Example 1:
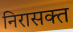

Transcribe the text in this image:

निरासक्त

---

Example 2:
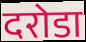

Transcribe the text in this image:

दरोडा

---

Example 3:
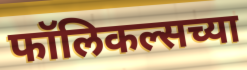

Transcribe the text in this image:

फॉलिकल्सच्या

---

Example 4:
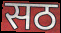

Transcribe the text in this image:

सठ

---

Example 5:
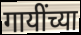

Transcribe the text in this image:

गायींच्या